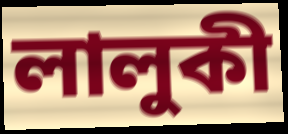
লালুকী